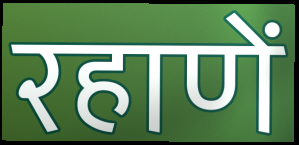
रहाणें